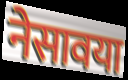
नेसावया